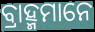
ବ୍ରାହ୍ମମାନେ